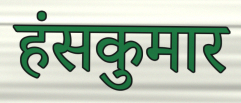
हंसकुमार